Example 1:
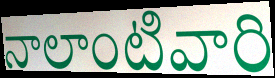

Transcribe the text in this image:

నాలాంటివారి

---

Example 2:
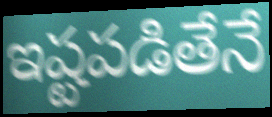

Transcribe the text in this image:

ఇష్టపడితేనే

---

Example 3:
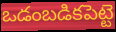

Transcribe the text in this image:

ఒడంబడికపెట్టె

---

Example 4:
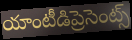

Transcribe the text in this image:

యాంటీడిప్రెసెంట్స్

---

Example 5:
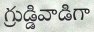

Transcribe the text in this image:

గ్రుడ్డివాడిగా